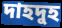
দাহদুহ